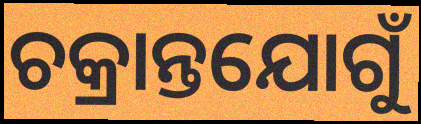
ଚକ୍ରାନ୍ତଯୋଗୁଁ